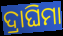
ଦ୍ରାଘିମା